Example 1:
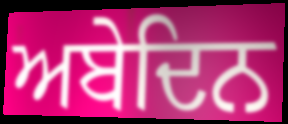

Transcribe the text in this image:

ਅਬੇਦਿਨ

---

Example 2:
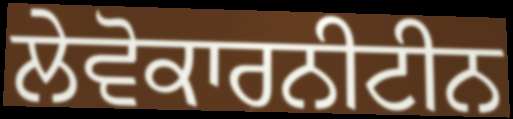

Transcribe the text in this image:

ਲੇਵੋਕਾਰਨੀਟੀਨ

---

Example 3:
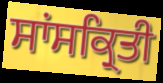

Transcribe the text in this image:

ਸਾਂਸਕ੍ਰਿਤੀ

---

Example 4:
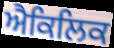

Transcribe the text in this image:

ਐਕਿਲਿਕ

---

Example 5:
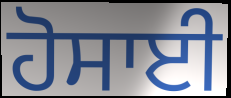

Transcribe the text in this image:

ਹੋਸਾਈ